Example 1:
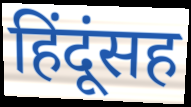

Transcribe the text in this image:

हिंदूंसह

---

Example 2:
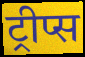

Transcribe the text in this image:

ट्रीप्स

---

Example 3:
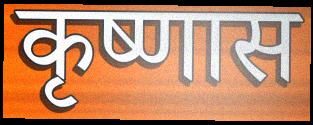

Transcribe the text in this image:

कृष्णास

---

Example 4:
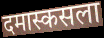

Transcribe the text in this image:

दमास्कसला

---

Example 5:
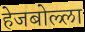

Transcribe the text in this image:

हेजबोल्ला